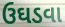
ઉઘડવા